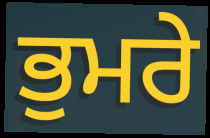
ਭੁਮਰੇ